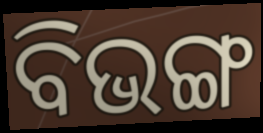
ବିଭଙ୍ଗ